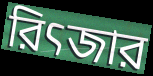
রিৎজার